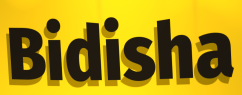
Bidisha